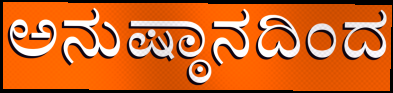
ಅನುಷ್ಠಾನದಿಂದ